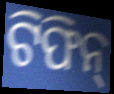
ଟିଫିନ୍